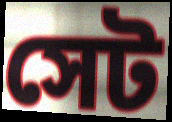
সেট